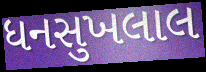
ધનસુખલાલ